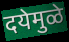
दयेमुळे